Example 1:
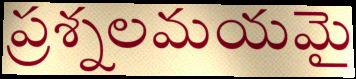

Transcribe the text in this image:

ప్రశ్నలమయమై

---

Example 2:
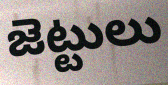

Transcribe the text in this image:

జెట్టులు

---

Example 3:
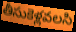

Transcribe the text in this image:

తీసుకెళ్లవలసి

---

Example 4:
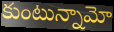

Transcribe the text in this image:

కుంటున్నామో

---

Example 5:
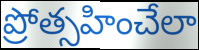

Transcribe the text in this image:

ప్రోత్సహించేలా